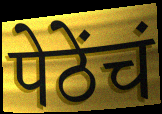
पेठेंचं